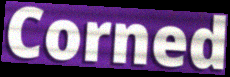
Corned